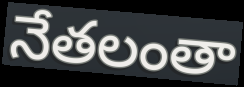
నేతలంతా